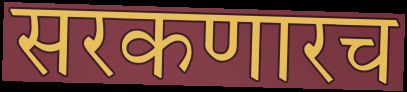
सरकणारच